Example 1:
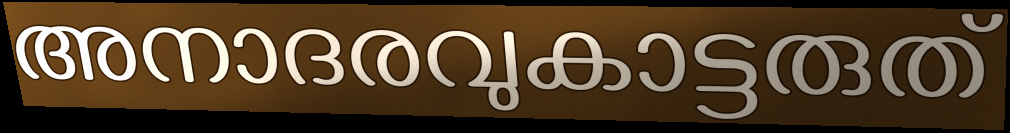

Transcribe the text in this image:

അനാദരവുകാട്ടരുത്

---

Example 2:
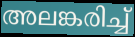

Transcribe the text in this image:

അലങ്കരിച്ച്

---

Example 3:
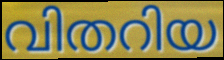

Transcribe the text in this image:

വിതറിയ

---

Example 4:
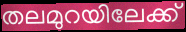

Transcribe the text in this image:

തലമുറയിലേക്ക്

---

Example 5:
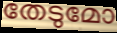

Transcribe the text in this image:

തേടുമോ